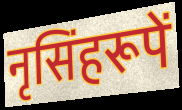
नृसिंहरूपें